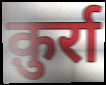
क़ुर्रा